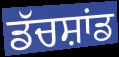
ਡੱਚਸ਼ਾਂਡ